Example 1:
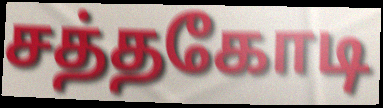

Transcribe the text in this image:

சத்தகோடி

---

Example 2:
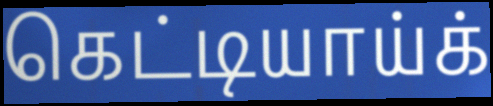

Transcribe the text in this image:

கெட்டியாய்க்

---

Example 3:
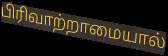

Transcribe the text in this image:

பிரிவாற்றாமையால்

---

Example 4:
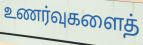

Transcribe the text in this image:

உணர்வுகளைத்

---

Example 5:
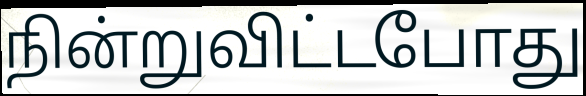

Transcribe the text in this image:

நின்றுவிட்டபோது